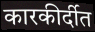
कारकीर्दीत